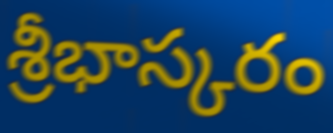
శ్రీభాస్కరం